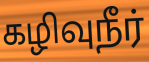
கழிவுநீர்